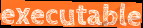
executable